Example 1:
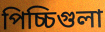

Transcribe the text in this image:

পিচ্চিগুলা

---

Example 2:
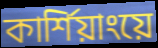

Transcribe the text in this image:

কার্শিয়াংয়ে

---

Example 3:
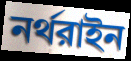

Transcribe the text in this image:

নর্থরাইন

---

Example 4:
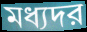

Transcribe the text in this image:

মধ্যদর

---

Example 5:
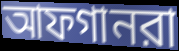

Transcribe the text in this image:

আফগানরা